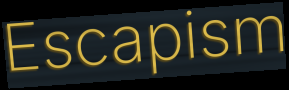
Escapism